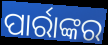
ପାର୍ରାଙ୍କର